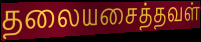
தலையசைத்தவள்